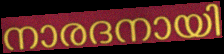
നാരദനായി